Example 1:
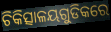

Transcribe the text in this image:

ଚିକିତ୍ସାଳୟଗୁଡିକରେ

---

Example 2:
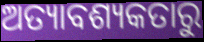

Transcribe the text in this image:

ଅତ୍ୟାବଶ୍ୟକତାରୁ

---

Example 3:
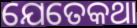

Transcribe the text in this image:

ଯେତେକଥା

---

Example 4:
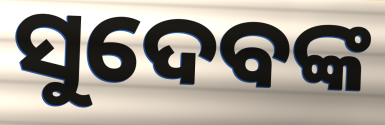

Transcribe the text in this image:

ସୁଦେବଙ୍କ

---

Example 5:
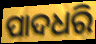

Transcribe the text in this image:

ପାଦଧରି